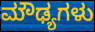
ಮೌಢ್ಯಗಳು